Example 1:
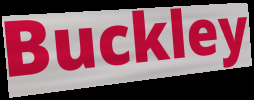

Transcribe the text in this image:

Buckley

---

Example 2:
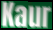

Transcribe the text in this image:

Kaur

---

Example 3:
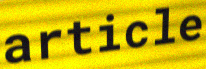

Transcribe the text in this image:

article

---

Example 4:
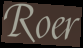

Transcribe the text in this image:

Roer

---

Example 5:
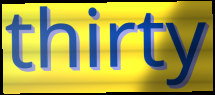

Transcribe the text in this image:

thirty